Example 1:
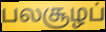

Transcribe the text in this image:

பலசூழப்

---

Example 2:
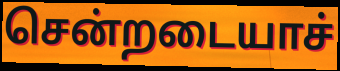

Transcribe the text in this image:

சென்றடையாச்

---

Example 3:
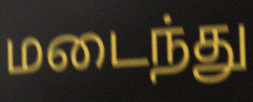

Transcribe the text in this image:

மடைந்து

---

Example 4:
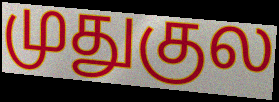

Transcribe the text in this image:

முதுகுல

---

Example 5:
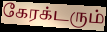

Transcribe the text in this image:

கேரக்டரும்